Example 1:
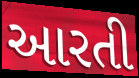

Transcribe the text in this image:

આરતી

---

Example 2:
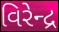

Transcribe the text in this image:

વિરેન્દ્ર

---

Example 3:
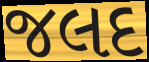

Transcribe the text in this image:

જલદ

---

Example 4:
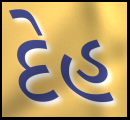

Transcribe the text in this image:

દેહ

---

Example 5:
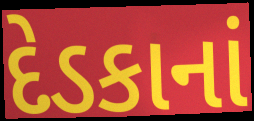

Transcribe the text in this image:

દેડકાનાં